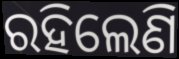
ରହିଲେଣି